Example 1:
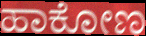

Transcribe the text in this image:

ಹಾಕೋಣ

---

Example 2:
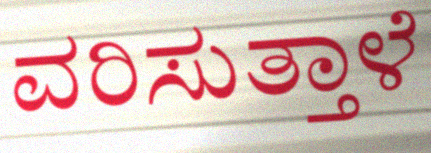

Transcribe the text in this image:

ವರಿಸುತ್ತಾಳೆ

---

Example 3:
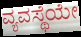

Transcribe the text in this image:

ವ್ಯವಸ್ಥೆಯೇ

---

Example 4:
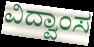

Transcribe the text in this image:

ವಿದ್ವಾಂಸ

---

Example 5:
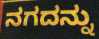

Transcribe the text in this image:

ನಗದನ್ನು